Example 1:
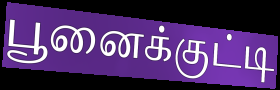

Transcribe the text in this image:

பூனைக்குட்டி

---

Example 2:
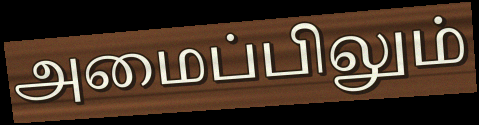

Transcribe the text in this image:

அமைப்பிலும்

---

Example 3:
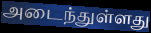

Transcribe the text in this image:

அடைந்துள்ளது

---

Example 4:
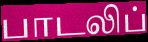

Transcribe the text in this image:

பாடலிப்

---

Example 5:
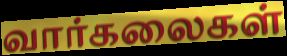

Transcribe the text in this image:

வார்கலைகள்